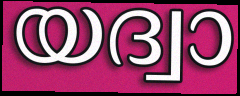
യദ്വാ